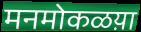
मनमोकळय़ा